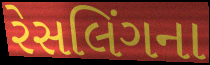
રેસલિંગના